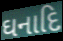
ઘનાદિ